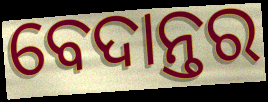
ବେଦାନ୍ତର